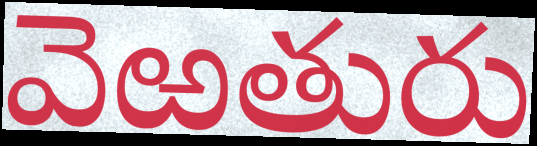
వెఱతురు